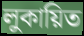
লুকায়িত